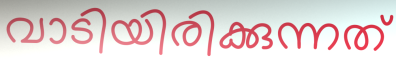
വാടിയിരിക്കുന്നത്